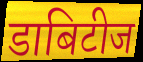
डाबिटीज